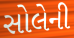
સોલેની